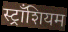
स्ट्राँशियम